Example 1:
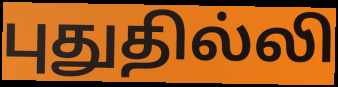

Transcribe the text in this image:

புதுதில்லி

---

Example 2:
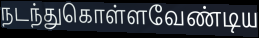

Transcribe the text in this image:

நடந்துகொள்ளவேண்டிய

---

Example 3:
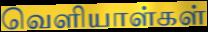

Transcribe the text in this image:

வெளியாள்கள்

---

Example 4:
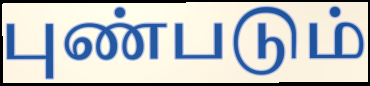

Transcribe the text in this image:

புண்படும்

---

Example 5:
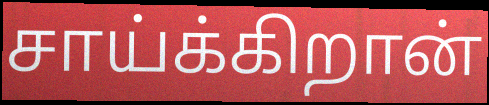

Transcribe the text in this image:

சாய்க்கிறான்